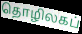
தொழிலகப்